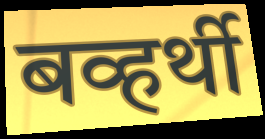
बव्हर्थी